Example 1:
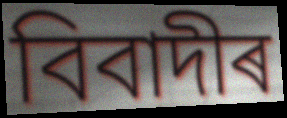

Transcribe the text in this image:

বিবাদীৰ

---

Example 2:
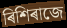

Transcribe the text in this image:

ৰিশিৰাজে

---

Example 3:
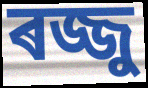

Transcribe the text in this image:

ৰজ্জু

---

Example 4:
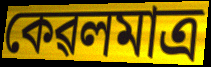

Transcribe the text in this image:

কেৱলমাত্ৰ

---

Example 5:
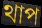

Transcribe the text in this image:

থাপ